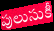
పులుసుకీ